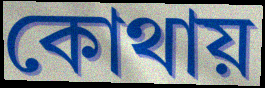
কোথায়